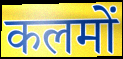
कलमों